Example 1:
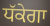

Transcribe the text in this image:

ਧੱਕੇਗਾ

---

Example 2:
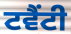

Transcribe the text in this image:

ਟਵੈਂਟੀ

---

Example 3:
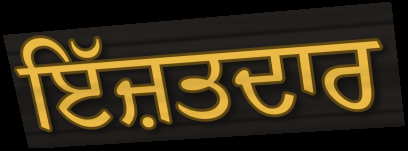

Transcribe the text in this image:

ਇੱਜ਼ਤਦਾਰ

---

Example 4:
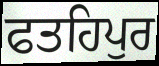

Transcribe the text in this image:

ਫਤਹਿਪੁਰ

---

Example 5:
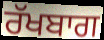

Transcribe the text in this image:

ਰੱਖਬਾਗ